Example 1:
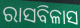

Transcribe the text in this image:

ରାସବିଳାସ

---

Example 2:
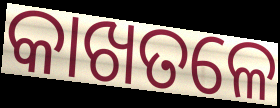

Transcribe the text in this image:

କାଖତଳେ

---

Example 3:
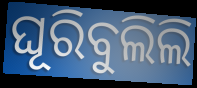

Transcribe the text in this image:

ଘୂରିବୁଲିଲି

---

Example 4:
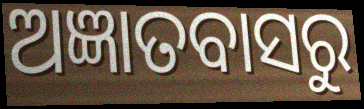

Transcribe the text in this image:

ଅଜ୍ଞାତବାସରୁ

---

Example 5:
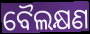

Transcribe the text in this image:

ବୈଲକ୍ଷଣ